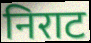
निराट